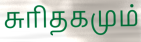
சுரிதகமும்